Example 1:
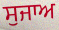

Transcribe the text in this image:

ਸੁਜਾਅ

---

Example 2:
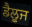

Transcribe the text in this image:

ਡੈਲੂਜ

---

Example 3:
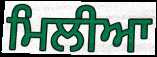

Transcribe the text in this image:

ਮਿਲੀਆ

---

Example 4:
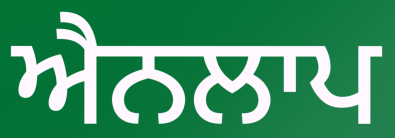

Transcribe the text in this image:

ਐਨਲਾਪ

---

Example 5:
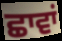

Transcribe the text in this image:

ਛਾਵਾਂ